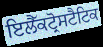
ਇਲੈੱਕਟ੍ਰੋਸਟੈਟਿਕ